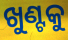
ଖୁଣ୍ଟକୁ